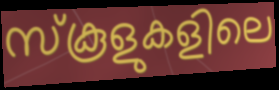
സ്കൂളുകളിലെ